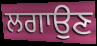
ਲਗਾਉਣ